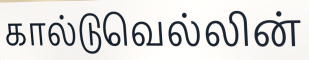
கால்டுவெல்லின்